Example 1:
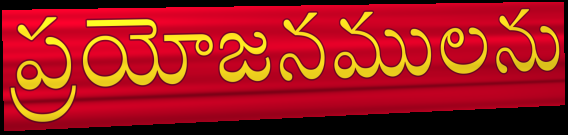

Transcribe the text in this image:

ప్రయోజనములను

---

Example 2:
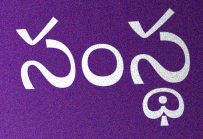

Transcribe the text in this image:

సంస్థ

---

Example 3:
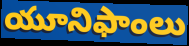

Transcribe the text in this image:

యూనిఫాంలు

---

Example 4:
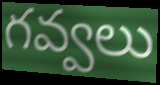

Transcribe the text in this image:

గవ్వలు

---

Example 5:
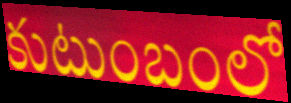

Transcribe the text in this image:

కుటుంబంలో